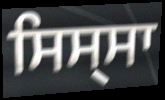
ਸਿਸ੍ਸਾ